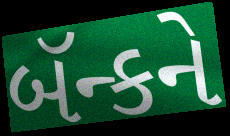
બૅન્કને